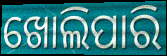
ଖୋଲିପାରି